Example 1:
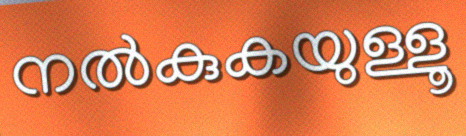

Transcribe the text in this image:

നൽകുകയുള്ളൂ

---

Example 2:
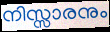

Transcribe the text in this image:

നിസ്സാരനും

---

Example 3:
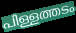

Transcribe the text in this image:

പിള്ളത്തടം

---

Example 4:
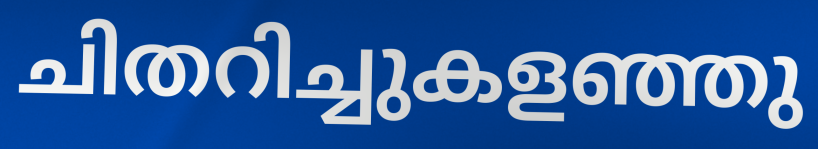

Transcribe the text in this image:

ചിതറിച്ചുകളഞ്ഞു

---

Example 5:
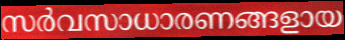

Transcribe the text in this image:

സർവസാധാരണങ്ങളായ